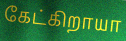
கேட்கிறாயா